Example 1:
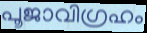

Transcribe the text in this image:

പൂജാവിഗ്രഹം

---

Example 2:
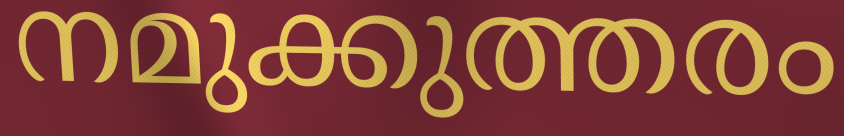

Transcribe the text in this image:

നമുക്കുത്തരം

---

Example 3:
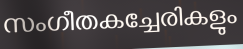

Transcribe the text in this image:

സംഗീതകച്ചേരികളും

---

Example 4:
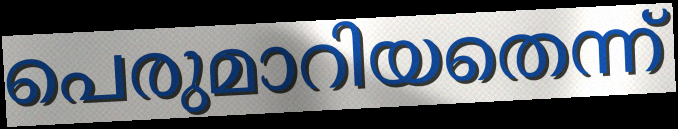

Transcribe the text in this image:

പെരുമാറിയതെന്ന്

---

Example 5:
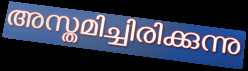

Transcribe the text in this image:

അസ്തമിച്ചിരിക്കുന്നു